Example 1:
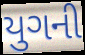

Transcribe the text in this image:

યુગની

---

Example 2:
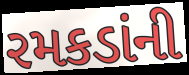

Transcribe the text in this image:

રમકડાંની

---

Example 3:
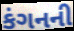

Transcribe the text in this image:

કંગનની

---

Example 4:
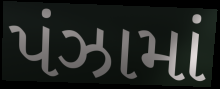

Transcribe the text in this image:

પંઝામાં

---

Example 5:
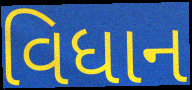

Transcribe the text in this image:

વિધાન